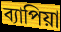
ব্যাপিয়া